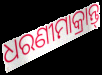
ଧରଣୀମାକ୍ରାନ୍ତ୍